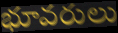
భూవరులు